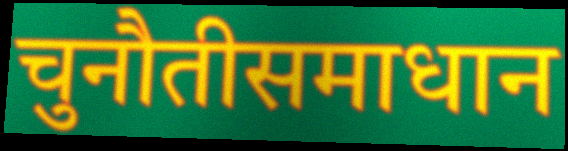
चुनौतीसमाधान